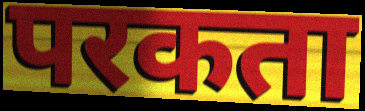
परकता